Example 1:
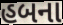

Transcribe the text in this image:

હબના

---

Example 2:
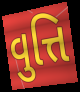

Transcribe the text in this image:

વુત્તિ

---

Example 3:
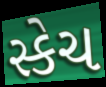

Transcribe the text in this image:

સ્કેચ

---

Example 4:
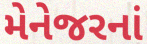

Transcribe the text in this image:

મેનેજરનાં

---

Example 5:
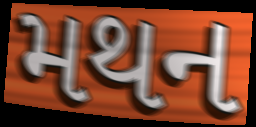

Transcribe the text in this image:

મથન